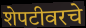
शेपटीवरचे